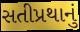
સતીપ્રથાનું